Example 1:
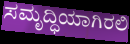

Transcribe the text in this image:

ಸಮೃದ್ಧಿಯಾಗಿರಲಿ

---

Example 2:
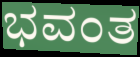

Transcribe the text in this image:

ಭವಂತ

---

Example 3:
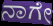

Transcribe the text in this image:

ನಾಗೇ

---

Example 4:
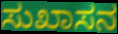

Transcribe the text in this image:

ಸುಖಾಸನ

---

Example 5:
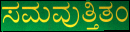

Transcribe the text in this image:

ಸಮವುತ್ತಿತಂ